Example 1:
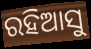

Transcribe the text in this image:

ରହିଆସୁ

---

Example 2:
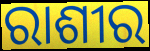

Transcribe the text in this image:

ରାଶୀର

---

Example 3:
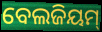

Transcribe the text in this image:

ବେଲଜିୟମ୍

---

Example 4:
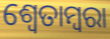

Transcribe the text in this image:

ଶ୍ୱେତାମ୍ବରା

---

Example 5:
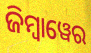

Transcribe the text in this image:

ଜିମ୍ୱାୱେର